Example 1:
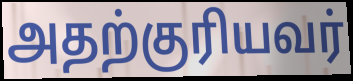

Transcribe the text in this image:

அதற்குரியவர்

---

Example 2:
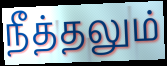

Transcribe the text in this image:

நீத்தலும்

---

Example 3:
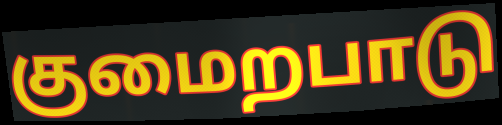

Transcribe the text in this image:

குமைறபாடு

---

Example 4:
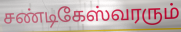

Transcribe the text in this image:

சண்டிகேஸ்வரரும்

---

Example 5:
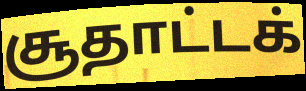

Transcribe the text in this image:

சூதாட்டக்